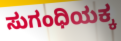
ಸುಗಂಧಿಯಕ್ಕ